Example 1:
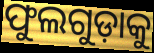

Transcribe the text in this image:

ଫୁଲଗୁଡ଼ାକୁ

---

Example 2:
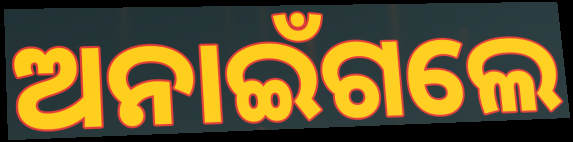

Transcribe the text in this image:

ଅନାଇଁଗଲେ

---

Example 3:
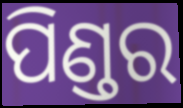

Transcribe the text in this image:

ପିଣ୍ଡର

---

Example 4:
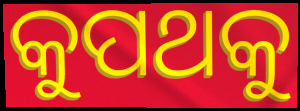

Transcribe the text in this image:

କୁପଥକୁ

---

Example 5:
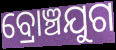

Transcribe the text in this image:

ବ୍ରୋଞ୍ଚଯୁଗ